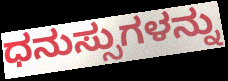
ಧನುಸ್ಸುಗಳನ್ನು